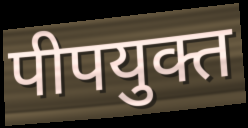
पीपयुक्त